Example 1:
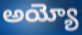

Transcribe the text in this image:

అయ్యో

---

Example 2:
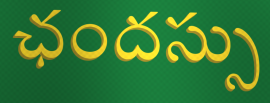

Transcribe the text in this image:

ఛందస్సు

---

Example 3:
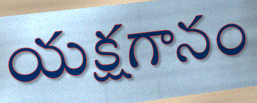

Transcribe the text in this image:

యక్షగానం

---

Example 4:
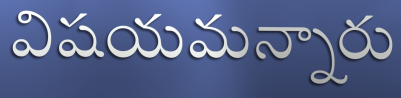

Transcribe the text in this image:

విషయమన్నారు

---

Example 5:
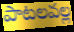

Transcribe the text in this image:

పాటలవల్ల